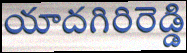
యాదగిరిరెడ్డి